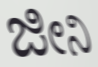
ಜೀನಿ